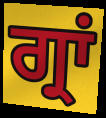
ਗ੍ਰਾਂ